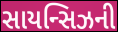
સાયન્સિઝની